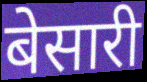
बेसारी